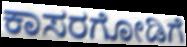
ಕಾಸರಗೋಡಿಗೆ